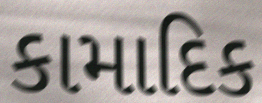
કામાદિક